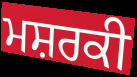
ਮਸ਼ਰਕੀ